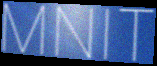
MNIT